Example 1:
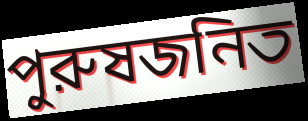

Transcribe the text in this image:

পুরুষজনিত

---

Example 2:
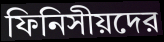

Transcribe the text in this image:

ফিনিসীয়দের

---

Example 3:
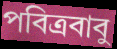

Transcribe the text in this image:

পবিত্রবাবু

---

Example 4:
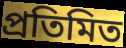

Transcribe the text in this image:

প্রতিমিত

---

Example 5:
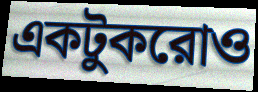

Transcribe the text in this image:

একটুকরোও